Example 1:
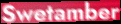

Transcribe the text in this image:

Swetamber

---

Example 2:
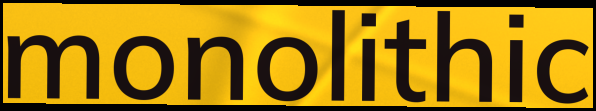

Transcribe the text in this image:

monolithic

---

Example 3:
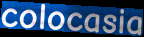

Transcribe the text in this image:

colocasia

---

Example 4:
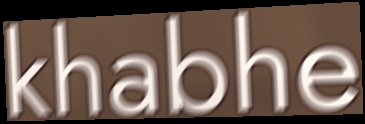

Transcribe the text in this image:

khabhe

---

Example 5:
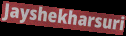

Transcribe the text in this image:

Jayshekharsuri